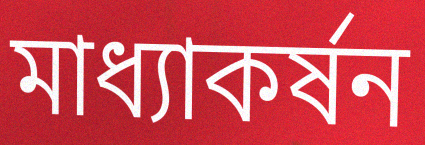
মাধ্যাকর্ষন